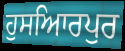
ਹੁਸਆਿਰਪੁਰ